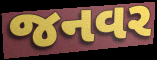
જનવર